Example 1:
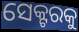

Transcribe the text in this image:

ସେକ୍ଟରକୁ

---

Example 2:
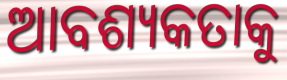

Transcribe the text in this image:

ଆବଶ୍ୟକତାକୁ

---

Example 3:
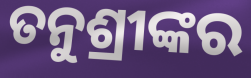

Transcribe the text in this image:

ତନୁଶ୍ରୀଙ୍କର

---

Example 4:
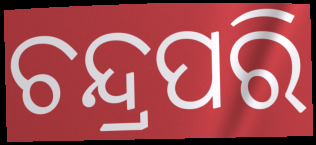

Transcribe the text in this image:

ଚନ୍ଦ୍ରପରି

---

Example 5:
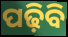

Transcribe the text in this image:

ପଢ଼ିବି